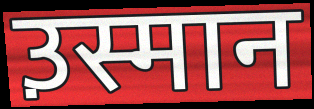
उ़स्मान